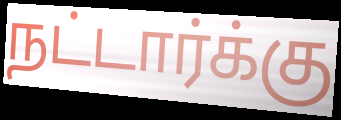
நட்டார்க்கு